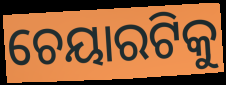
ଚେୟାରଟିକୁ